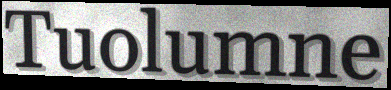
Tuolumne